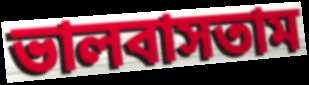
ভালবাসতাম